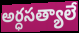
అర్ధసత్యాలే